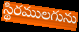
స్థిరములగును